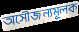
অসৌজন্যমূলক